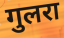
गुलरा